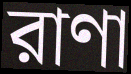
রাণা